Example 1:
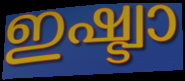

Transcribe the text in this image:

ഇഷ്ട്വാ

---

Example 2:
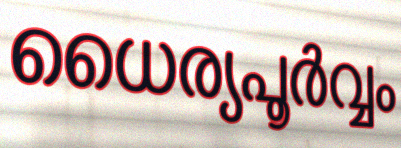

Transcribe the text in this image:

ധൈര്യപൂർവ്വം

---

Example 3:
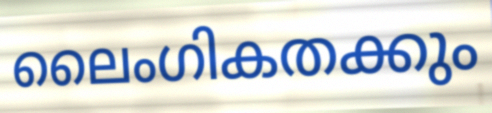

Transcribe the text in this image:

ലൈംഗികതക്കും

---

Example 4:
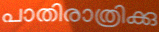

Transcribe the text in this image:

പാതിരാത്രിക്കു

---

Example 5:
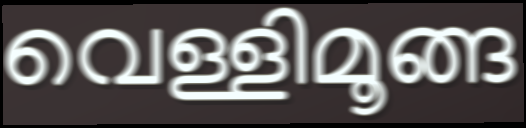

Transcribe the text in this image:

വെള്ളിമൂങ്ങ